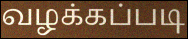
வழக்கப்படி